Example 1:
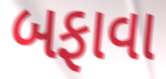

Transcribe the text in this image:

બફાવા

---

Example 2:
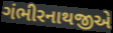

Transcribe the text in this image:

ગંભીરનાથજીએ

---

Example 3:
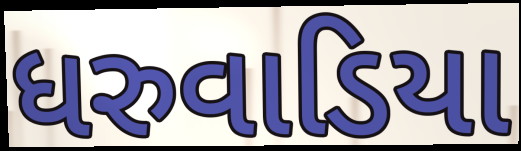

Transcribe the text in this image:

ધરુવાડિયા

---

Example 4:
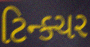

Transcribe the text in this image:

ટિન્ક્ચર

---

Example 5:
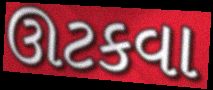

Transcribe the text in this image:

ઊટકવા